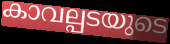
കാവല്പടയുടെ